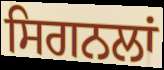
ਸਿਗਨਲਾਂ